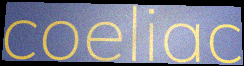
coeliac